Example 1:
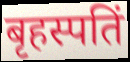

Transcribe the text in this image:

बृहस्पतिं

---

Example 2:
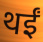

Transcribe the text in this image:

थईं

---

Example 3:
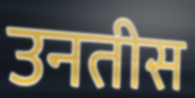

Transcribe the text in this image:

उनतीस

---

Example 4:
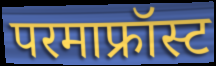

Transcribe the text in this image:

परमाफ्रॉस्ट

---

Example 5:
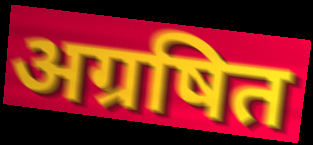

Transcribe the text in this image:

अग्रषित